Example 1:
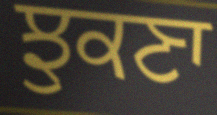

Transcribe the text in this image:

ਝੁਕਣਾ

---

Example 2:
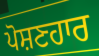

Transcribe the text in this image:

ਪੋਸ਼ਣਹਾਰ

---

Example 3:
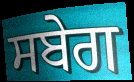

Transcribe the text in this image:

ਸਬੇਗ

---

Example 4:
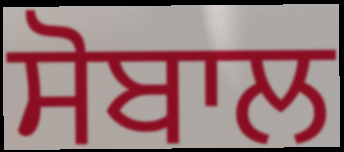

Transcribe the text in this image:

ਸੋਬਾਲ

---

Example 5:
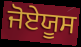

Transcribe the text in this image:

ਜੋਏਯੂਸ